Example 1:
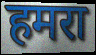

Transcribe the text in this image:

हमरा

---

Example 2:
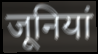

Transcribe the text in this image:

जूनियां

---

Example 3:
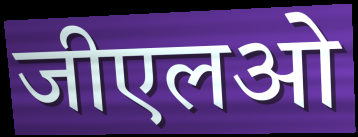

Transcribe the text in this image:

जीएलओ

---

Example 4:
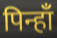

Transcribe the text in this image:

पिन्हाँ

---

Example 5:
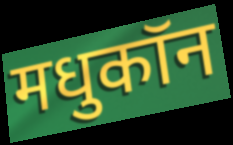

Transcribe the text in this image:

मधुकॉन